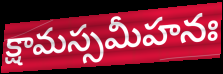
క్షామస్సమీహనః